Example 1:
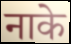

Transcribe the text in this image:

नाके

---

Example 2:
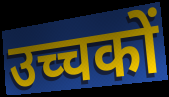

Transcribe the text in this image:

उच्चकों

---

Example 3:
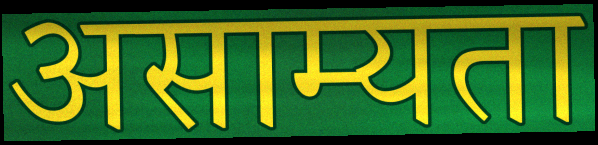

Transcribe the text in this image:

असाम्यता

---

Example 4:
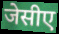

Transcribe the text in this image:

जेसीए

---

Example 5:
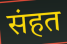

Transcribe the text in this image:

संहत